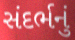
સંદર્ભનું